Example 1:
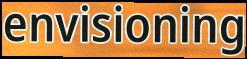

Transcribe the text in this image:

envisioning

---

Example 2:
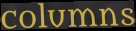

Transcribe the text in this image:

columns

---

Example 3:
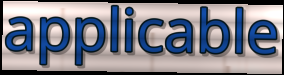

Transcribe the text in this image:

applicable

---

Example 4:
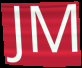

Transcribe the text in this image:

JM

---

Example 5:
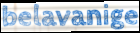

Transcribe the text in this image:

belavanige